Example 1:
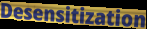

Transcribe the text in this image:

Desensitization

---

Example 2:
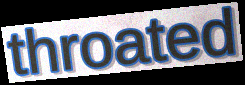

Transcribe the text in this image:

throated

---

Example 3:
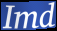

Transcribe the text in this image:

Imd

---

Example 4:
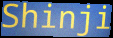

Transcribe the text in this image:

Shinji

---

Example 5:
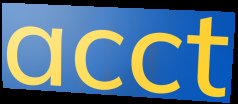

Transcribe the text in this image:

acct